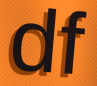
df